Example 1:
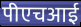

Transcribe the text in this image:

पीएचआई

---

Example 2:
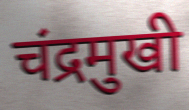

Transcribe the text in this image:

चंद्रमुखी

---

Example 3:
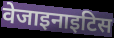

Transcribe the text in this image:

वेजाइनाइटिस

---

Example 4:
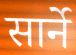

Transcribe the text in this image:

सार्ने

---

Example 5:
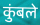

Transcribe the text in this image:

कुंबले